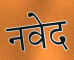
नवेद